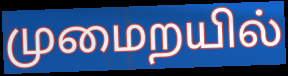
முமைறயில்